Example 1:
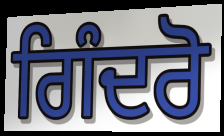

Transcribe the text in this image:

ਗਿੰਦਰੋ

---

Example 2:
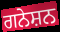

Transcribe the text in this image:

ਗਨੇਸ਼ਨ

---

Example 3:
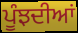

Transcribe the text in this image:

ਪੂੰਝਦੀਆਂ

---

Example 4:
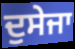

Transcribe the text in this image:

ਦੁਸੇਜਾ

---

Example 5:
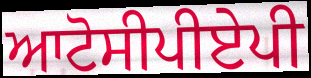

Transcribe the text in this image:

ਆਟੋਸੀਪੀਏਪੀ